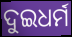
ଦୁଇଧର୍ମ